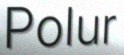
Polur